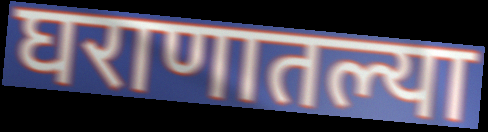
घराणातल्या